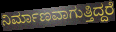
ನಿರ್ಮಾಣವಾಗುತ್ತಿದ್ದರೆ